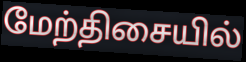
மேற்திசையில்